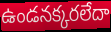
ఉండనక్కరలేదా